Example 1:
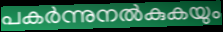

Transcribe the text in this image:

പകർന്നുനൽകുകയും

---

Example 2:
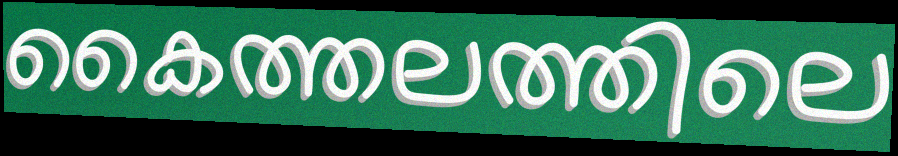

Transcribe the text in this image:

കൈത്തലത്തിലെ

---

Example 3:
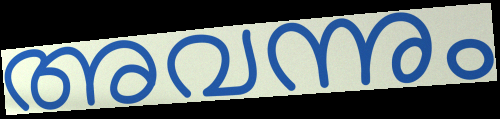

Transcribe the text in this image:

അവന്നും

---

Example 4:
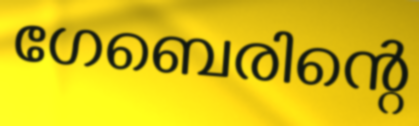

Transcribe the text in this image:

ഗേബെരിന്റെ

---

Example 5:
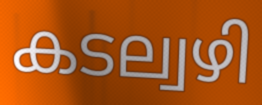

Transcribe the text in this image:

കടല്വഴി